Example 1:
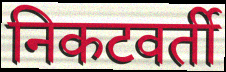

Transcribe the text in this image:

निकटवर्ती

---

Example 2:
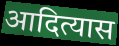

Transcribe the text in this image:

आदित्यास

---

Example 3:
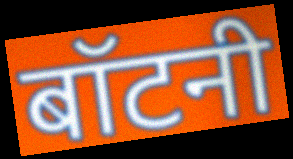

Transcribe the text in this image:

बॉटनी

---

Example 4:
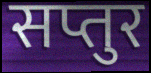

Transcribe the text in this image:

सप्तुर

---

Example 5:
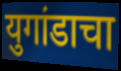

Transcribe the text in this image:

युगांडाचा